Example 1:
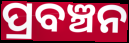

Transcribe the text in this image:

ପ୍ରବଞ୍ଚନ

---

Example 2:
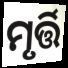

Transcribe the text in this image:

ମୃର୍ତ୍ତି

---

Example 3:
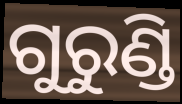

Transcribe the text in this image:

ଗୁରୁଣ୍ଡି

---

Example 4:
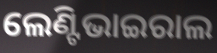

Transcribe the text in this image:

ଲେଣ୍ଟିଭାଇରାଲ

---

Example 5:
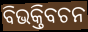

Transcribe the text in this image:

ବିଭକ୍ତିବଚନ